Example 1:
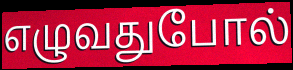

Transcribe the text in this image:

எழுவதுபோல்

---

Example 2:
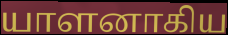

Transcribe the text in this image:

யாளனாகிய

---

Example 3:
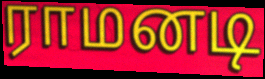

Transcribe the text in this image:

ராமனடி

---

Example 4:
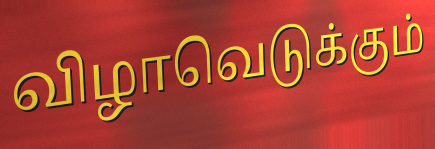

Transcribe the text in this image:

விழாவெடுக்கும்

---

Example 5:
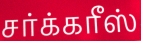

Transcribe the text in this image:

சர்க்கரீஸ்